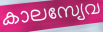
കാലസ്യേവ